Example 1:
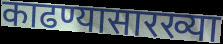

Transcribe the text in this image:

काढण्यासारख्या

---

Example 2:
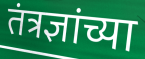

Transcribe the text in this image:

तंत्रज्ञांच्या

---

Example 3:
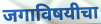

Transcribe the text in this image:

जगाविषयीचा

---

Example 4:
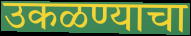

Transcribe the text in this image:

उकळण्याचा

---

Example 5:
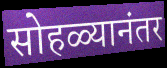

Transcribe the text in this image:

सोहळ्यानंतर